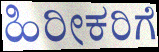
ಹಿರೀಕರಿಗೆ